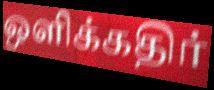
ஒளிக்கதிர்